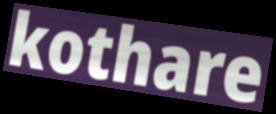
kothare